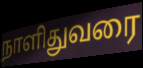
நாளிதுவரை